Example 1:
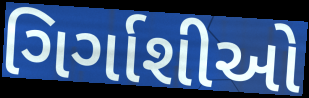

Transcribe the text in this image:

ગિર્ગાશીઓ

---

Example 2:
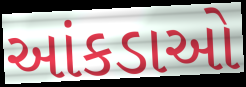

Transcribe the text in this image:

આંકડાઓ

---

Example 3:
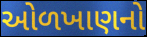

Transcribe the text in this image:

ઓળખાણનો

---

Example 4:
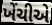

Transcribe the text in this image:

ખેંચીએ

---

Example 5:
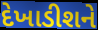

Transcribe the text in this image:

દેખાડીશને